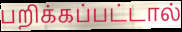
பறிக்கப்பட்டால்